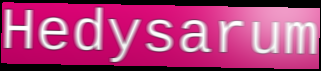
Hedysarum